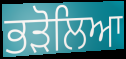
ਭੜੋਲਿਆ